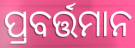
ପ୍ରବର୍ତ୍ତମାନ